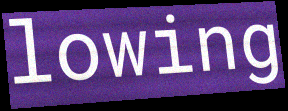
lowing